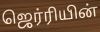
ஜெர்ரியின்